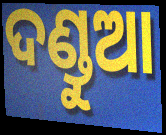
ଦଣ୍ଡୁଆ